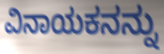
ವಿನಾಯಕನನ್ನು